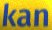
kan